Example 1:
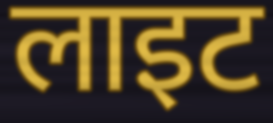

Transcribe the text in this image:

लाइट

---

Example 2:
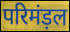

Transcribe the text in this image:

परिमंड़ल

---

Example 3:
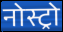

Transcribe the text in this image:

नोस्ट्रो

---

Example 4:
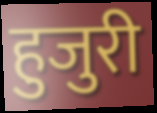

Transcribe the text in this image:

हुजुरी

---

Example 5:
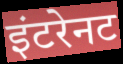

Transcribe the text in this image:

इंटरेनट